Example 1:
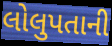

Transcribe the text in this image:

લોલુપતાની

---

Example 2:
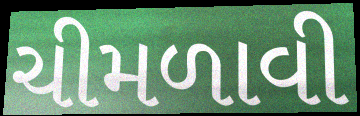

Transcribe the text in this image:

ચીમળાવી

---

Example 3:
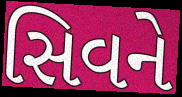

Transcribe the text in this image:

સિવને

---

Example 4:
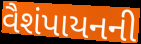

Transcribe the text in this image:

વૈશંપાયનની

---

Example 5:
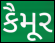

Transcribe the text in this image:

કૈમૂર